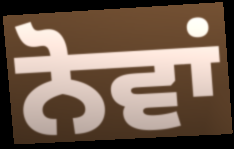
ਨੋਵਾਂ